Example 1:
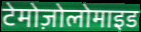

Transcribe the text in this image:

टेमोज़ोलोमाइड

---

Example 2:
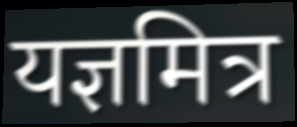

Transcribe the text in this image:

यज्ञमित्र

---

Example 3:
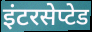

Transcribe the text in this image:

इंटरसेप्टेड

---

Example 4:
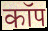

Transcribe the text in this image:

कॉप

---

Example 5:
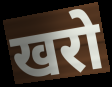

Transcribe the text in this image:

खरो